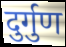
दुर्गुण